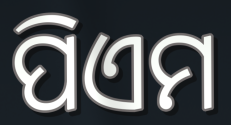
ପିଏମ